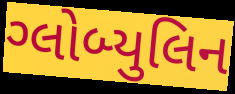
ગ્લોબ્યુલિન